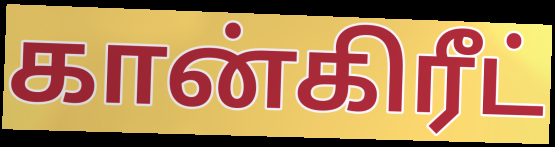
கான்கிரீட்